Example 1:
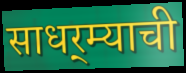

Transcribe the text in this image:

साधर्म्याची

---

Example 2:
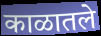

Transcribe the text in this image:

काळातले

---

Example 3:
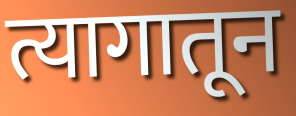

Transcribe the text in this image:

त्यागातून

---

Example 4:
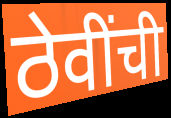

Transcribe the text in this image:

ठेवींची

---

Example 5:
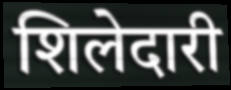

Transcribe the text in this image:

शिलेदारी